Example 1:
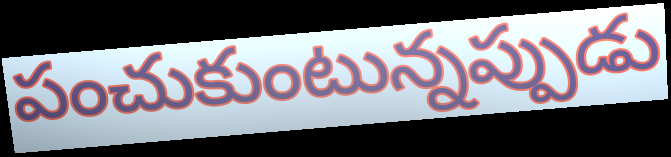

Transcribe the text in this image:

పంచుకుంటున్నప్పుడు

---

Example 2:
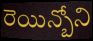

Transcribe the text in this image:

రెయిన్బోని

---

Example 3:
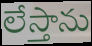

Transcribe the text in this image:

లేస్తాను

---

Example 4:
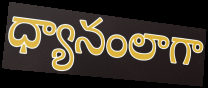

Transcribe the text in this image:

ధ్యానంలాగా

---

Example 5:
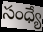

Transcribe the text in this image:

సంధ్యే